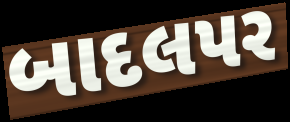
બાદલપર